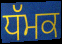
ਧੱਮਕ